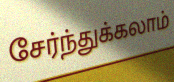
சேர்ந்துக்கலாம்